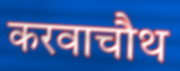
करवाचौथ